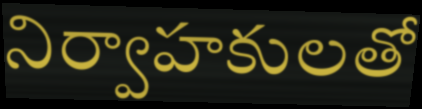
నిర్వాహకులతో